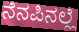
ನೆನಪಿನಲ್ಲೆ